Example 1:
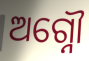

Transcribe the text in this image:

ଅଗ୍ନୌ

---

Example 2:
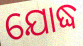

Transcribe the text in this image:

ଯୋଦ୍ଧ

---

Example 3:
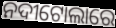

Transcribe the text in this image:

ନଦୀଟୋଲାରେ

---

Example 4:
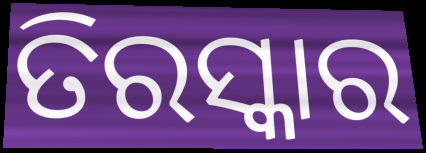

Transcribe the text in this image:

ତିରସ୍କାର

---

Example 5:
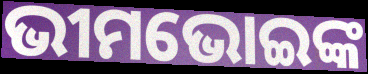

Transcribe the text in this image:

ଭୀମଭୋଇଙ୍କ